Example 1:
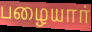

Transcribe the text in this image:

பழையார்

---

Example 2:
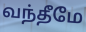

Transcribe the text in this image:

வந்தீமே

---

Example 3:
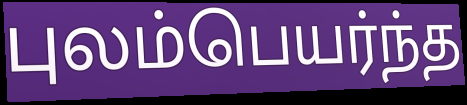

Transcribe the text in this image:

புலம்பெயர்ந்த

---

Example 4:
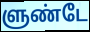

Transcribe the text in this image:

ளுண்டே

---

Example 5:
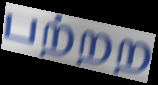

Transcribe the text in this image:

பற்றற